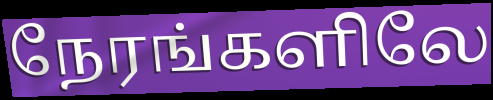
நேரங்களிலே